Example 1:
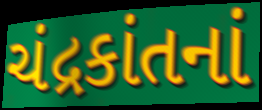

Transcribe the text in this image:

ચંદ્રકાંતનાં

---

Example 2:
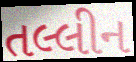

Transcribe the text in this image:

તલ્લીન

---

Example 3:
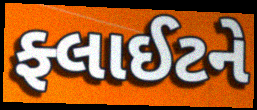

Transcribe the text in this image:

ફ્લાઈટને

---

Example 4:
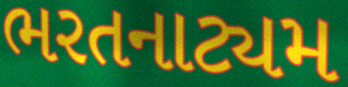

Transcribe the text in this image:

ભરતનાટ્યમ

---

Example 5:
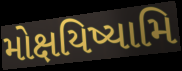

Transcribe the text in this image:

મોક્ષયિષ્યામિ